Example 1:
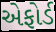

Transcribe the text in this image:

એફોર્ડ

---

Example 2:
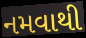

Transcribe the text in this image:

નમવાથી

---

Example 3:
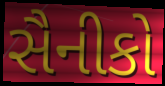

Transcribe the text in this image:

સૈનીકો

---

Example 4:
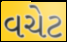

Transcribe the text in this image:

વચેટ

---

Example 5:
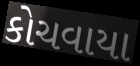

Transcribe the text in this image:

કોચવાયા